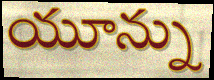
యూన్ను